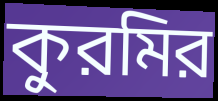
কুরমির